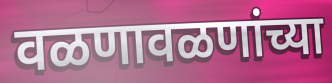
वळणावळणांच्या